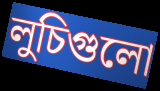
লুচিগুলো